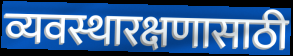
व्यवस्थारक्षणासाठी